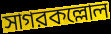
সাগরকল্লোল